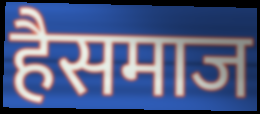
हैसमाज